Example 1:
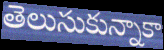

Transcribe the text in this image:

తెలుసుకున్నాకా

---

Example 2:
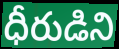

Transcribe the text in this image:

ధీరుడిని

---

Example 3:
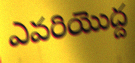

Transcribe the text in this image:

ఎవరియొద్ద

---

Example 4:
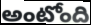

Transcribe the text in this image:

అంటోంది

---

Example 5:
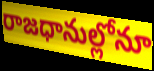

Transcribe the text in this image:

రాజధానుల్లోనూ